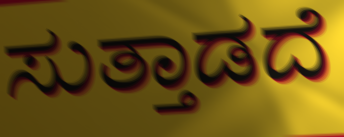
ಸುತ್ತಾಡದೆ